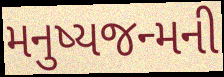
મનુષ્યજન્મની